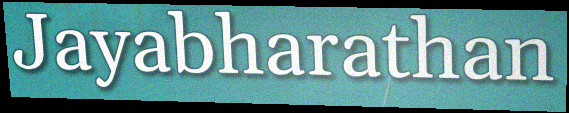
Jayabharathan